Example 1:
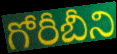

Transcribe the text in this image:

గోరీబీని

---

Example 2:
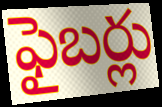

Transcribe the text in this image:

ఫైబర్లు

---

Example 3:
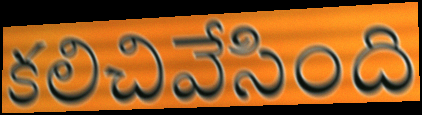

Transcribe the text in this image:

కలిచివేసింది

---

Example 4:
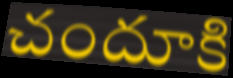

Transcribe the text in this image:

చందూకి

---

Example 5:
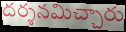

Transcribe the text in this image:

దర్శనమిచ్చారు